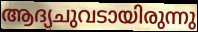
ആദ്യചുവടായിരുന്നു